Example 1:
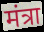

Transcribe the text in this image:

मंत्रा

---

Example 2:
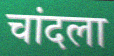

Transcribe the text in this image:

चांदला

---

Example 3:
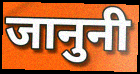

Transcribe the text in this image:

जानुनी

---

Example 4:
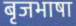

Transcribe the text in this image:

बृजभाषा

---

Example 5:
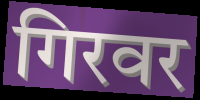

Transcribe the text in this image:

गिरवर